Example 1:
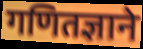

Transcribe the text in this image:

गणितज्ञाने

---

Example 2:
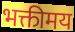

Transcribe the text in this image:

भक्तीमय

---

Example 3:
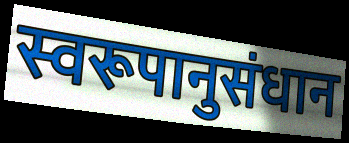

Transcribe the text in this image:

स्वरूपानुसंधान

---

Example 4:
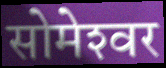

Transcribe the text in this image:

सोमेश्वर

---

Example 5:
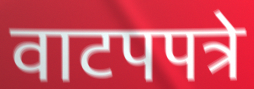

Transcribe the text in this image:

वाटपपत्रे